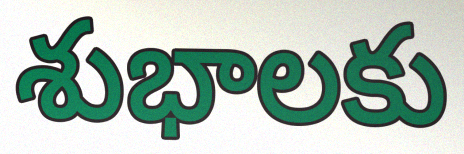
శుభాలకు